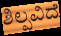
ಶಿಲ್ಪವಿದೆ